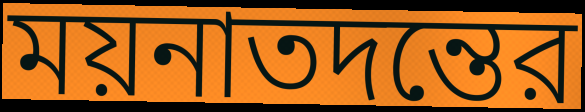
ময়নাতদন্তের